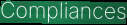
Compliances